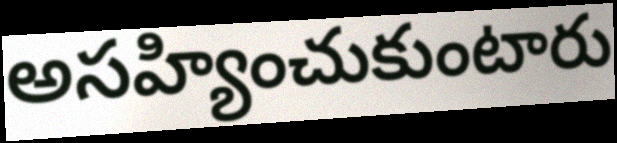
అసహ్యించుకుంటారు